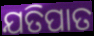
ଯତିପାତ